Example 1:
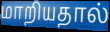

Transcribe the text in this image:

மாறியதால்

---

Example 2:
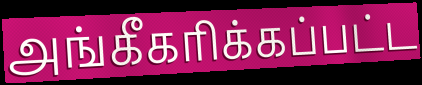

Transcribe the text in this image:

அங்கீகரிக்கப்பட்ட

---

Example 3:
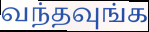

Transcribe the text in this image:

வந்தவுங்க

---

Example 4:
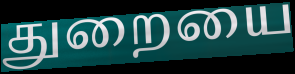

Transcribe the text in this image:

துறையை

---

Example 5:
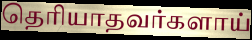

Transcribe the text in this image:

தெரியாதவர்களாய்